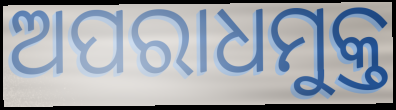
ଅପରାଧମୁକ୍ତ